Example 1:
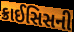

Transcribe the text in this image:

ક્રાઈસિસની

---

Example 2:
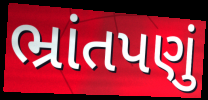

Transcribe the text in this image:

ભ્રાંતપણું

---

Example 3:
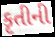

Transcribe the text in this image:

કૃતીની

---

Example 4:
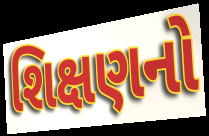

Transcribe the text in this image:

શિક્ષણનો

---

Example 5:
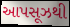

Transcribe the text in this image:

આપસૂઝથી